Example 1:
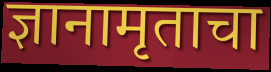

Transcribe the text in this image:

ज्ञानामृताचा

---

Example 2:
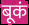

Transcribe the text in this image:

बूकं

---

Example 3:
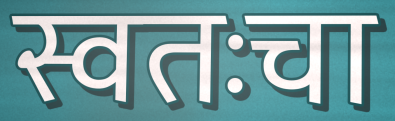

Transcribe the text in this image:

स्वतःचा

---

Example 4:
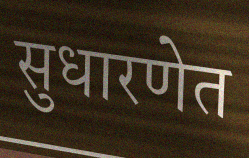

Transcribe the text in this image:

सुधारणेत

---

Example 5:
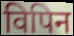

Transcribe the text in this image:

विपिन